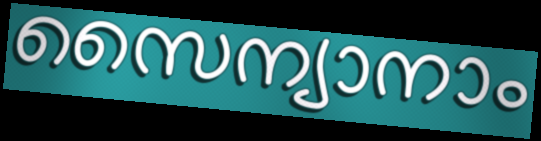
സൈന്യാനാം